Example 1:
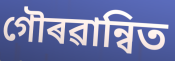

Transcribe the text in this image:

গৌৰৱান্বিত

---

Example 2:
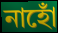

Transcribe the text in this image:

নাহোঁ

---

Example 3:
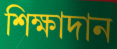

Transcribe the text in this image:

শিক্ষাদান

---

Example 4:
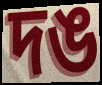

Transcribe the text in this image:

দঙ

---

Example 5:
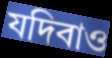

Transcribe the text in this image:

যদিবাও